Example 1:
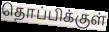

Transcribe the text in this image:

தொப்பிக்குள்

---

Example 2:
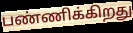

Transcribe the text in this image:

பண்ணிக்கிறது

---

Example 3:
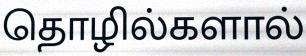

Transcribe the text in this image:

தொழில்களால்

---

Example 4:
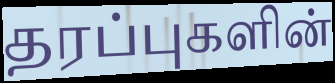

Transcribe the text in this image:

தரப்புகளின்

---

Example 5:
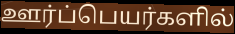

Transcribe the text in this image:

ஊர்ப்பெயர்களில்